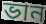
ভান